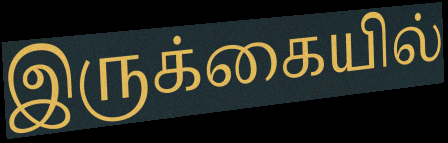
இருக்கையில்